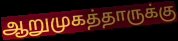
ஆறுமுகத்தாருக்கு